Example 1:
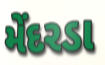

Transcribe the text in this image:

મેંદરડા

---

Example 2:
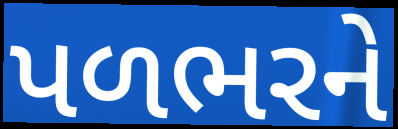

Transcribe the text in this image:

પળભરને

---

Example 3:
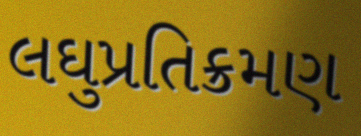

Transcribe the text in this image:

લઘુપ્રતિક્રમણ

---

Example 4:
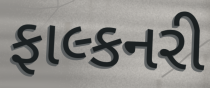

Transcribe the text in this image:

ફાલ્કનરી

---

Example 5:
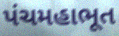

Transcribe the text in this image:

પંચમહાભૂત